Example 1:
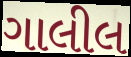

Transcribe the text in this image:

ગાલીલ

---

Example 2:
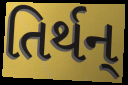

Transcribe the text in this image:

તિર્થન્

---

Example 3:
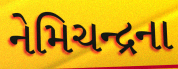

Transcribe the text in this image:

નેમિચન્દ્રના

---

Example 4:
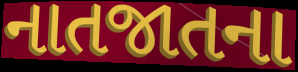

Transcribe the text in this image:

નાતજાતના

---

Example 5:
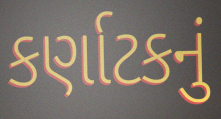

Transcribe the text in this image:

કર્ણાટકનું